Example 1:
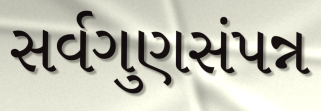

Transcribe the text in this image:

સર્વગુણસંપન્ન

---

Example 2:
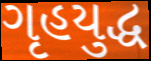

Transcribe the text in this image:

ગૃહયુદ્ધ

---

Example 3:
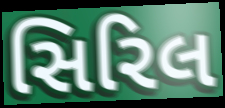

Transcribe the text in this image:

સિરિલ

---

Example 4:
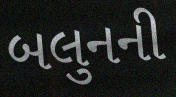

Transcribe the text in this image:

બલુનની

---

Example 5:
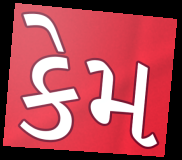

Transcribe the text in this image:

કેમ